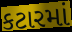
કટારમાં